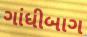
ગાંધીબાગ